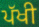
ਪੱਖੀ